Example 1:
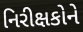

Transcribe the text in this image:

નિરીક્ષકોને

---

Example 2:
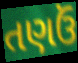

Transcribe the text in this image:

તણઉં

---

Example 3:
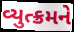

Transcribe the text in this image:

વ્યુત્ક્રમને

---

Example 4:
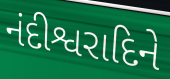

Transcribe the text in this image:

નંદીશ્વરાદિને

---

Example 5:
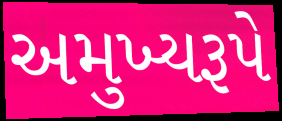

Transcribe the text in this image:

અમુખ્યરૂપે